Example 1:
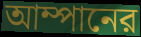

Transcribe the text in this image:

আম্পানের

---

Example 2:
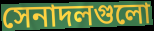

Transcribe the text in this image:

সেনাদলগুলো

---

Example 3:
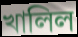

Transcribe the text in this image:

খালিল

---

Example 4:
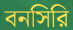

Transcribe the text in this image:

বনসিরি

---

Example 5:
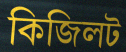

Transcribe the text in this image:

কিজিলট